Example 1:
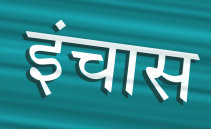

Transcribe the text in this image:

इंचास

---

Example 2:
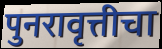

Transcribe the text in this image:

पुनरावृत्तीचा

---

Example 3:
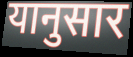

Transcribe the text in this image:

यानुसार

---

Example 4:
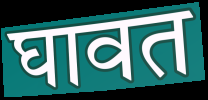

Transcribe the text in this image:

घावत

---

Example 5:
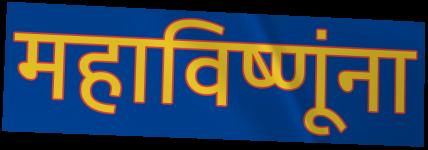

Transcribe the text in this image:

महाविष्णूंना